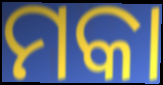
ମକା